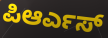
ಪಿಆರ್ಎಸ್